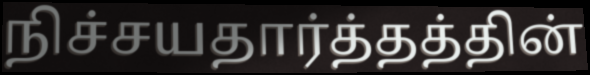
நிச்சயதார்த்தத்தின்